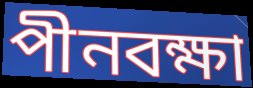
পীনবক্ষা